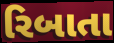
રિબાતા